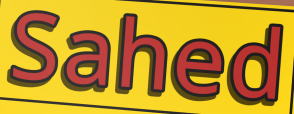
Sahed